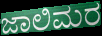
ಜಾಲಿಮರ